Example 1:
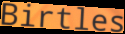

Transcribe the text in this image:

Birtles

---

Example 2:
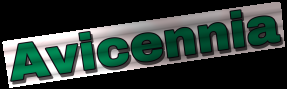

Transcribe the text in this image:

Avicennia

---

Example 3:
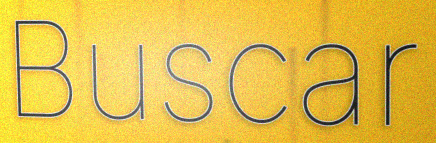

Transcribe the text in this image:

Buscar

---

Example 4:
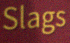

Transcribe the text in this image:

Slags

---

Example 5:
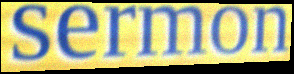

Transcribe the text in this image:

sermon